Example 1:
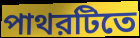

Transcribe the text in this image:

পাথরটিতে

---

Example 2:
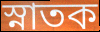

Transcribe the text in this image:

স্নাতক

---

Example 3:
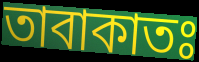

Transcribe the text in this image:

তাবাকাতঃ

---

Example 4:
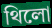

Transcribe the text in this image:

থিলো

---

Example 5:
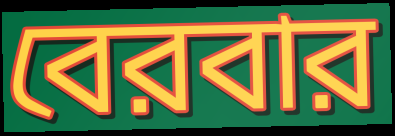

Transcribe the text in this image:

বেরবার